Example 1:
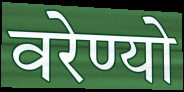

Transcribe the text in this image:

वरेण्यो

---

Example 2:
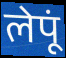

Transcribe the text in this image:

लेपूं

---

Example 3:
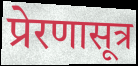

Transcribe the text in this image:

प्रेरणासूत्र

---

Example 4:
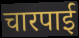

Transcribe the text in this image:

चारपाई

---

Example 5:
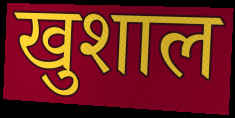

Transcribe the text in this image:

खुशाल